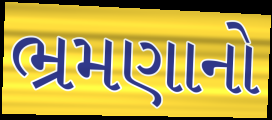
ભ્રમણાનો